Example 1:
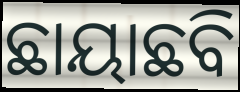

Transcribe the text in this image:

ଛାୟାଛବି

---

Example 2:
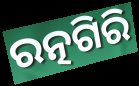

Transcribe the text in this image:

ରତ୍ନଗିରି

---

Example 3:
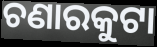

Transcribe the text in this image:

ଚଣାରକୁଟା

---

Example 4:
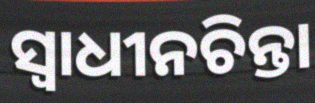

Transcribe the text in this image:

ସ୍ଵାଧୀନଚିନ୍ତା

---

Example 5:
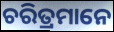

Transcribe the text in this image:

ଚରିତ୍ରମାନେ